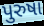
પુરુષા